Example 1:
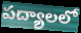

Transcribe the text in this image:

పద్యాలలో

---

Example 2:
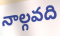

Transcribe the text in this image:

నాల్గవది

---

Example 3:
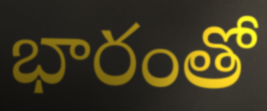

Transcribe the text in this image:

భారంతో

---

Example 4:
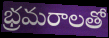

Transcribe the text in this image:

భ్రమరాలతో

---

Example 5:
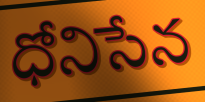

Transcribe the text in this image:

ధోనిసేన